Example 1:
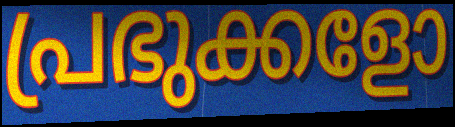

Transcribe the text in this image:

പ്രഭുക്കളോ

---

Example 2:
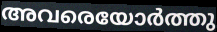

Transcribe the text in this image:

അവരെയോർത്തു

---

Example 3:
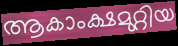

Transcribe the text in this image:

ആകാംക്ഷമുറ്റിയ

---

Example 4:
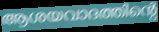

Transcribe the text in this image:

ആശയവാദത്തിന്റെ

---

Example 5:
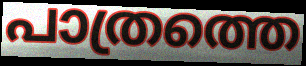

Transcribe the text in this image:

പാത്രത്തെ